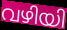
വഴിയി